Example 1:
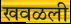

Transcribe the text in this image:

खवळली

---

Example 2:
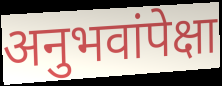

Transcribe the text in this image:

अनुभवांपेक्षा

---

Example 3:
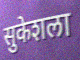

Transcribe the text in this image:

सुकेशला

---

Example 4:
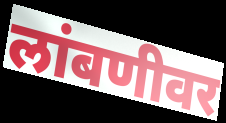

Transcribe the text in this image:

लांबणीवर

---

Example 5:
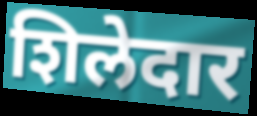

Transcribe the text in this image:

शिलेदार